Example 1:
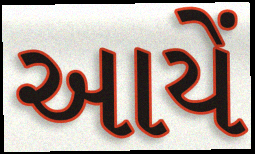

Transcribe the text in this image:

આયેં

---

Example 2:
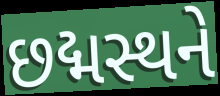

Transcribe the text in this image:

છદ્મસ્થને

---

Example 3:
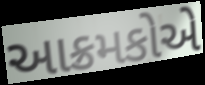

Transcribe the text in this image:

આક્રમકોએ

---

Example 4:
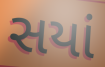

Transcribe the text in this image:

સયાં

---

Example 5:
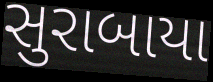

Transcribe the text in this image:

સુરાબાયા